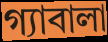
গ্যাবালা